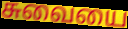
சுவையை